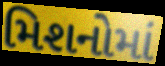
મિશનોમાં